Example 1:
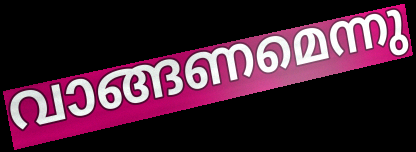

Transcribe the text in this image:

വാങ്ങണമെന്നു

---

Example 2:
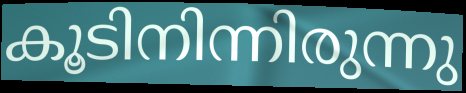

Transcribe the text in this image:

കൂടിനിന്നിരുന്നു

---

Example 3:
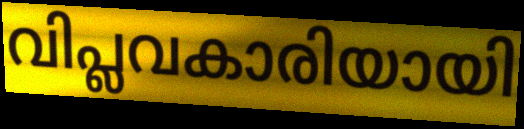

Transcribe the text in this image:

വിപ്ലവകാരിയായി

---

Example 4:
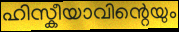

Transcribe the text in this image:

ഹിസ്കീയാവിന്റെയും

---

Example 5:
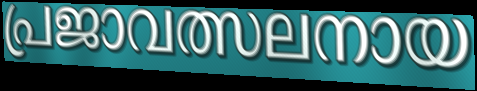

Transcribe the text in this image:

പ്രജാവത്സലനായ